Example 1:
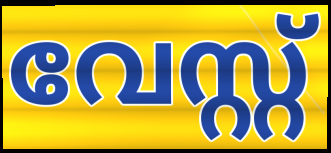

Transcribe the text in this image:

വേസ്റ്റ്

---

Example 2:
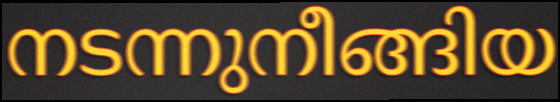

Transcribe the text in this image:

നടന്നുനീങ്ങിയ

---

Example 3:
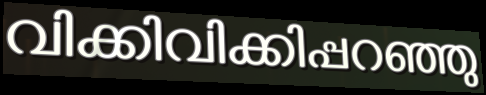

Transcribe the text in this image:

വിക്കിവിക്കിപ്പറഞ്ഞു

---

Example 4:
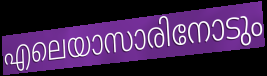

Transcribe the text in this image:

എലെയാസാരിനോടും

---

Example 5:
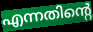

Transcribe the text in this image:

എന്നതിന്റെ